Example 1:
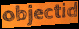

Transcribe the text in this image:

objectid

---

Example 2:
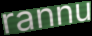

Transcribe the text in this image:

rannu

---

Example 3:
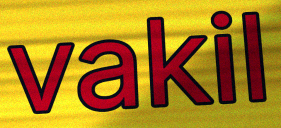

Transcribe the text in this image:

vakil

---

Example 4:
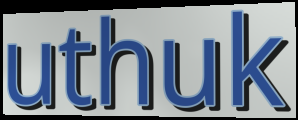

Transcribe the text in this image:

uthuk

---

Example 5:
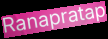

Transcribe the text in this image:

Ranapratap